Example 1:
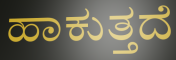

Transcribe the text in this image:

ಹಾಕುತ್ತದೆ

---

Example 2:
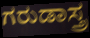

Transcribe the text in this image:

ಗರುಡಾಸ್ತ್ರ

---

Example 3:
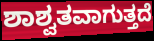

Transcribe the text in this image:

ಶಾಶ್ವತವಾಗುತ್ತದೆ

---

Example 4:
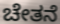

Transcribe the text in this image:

ಚೇತನೆ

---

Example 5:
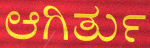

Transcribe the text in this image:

ಆಗಿರ್ತು